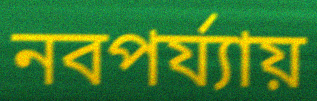
নবপর্য্যায়